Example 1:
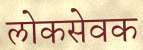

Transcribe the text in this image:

लोकसेवक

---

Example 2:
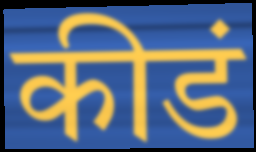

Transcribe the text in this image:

कीडं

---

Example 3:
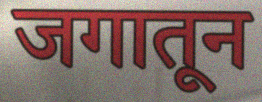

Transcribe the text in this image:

जगातून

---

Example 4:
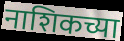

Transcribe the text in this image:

नाशिकच्या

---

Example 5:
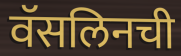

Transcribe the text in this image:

वॅसलिनची